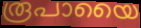
രൂപായൈ